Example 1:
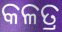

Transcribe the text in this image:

କଳତ୍ର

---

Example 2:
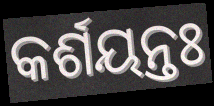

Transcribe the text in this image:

କର୍ଶୟନ୍ତଃ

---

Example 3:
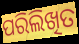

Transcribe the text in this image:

ପରିଲିଖିତ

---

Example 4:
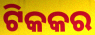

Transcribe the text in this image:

ଟିକକର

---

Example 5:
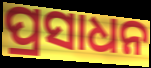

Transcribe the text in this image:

ପ୍ରସାଧନ